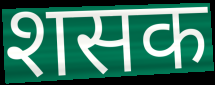
शसक